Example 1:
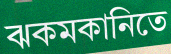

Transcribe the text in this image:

ঝকমকানিতে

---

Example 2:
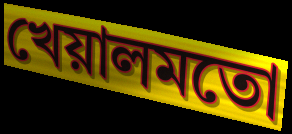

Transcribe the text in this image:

খেয়ালমতো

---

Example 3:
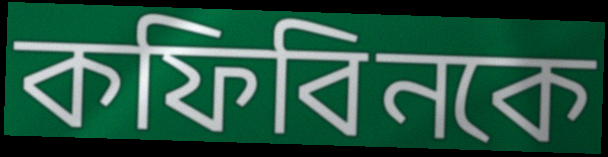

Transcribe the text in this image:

কফিবিনকে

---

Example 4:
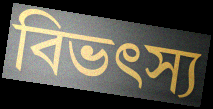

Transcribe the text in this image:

বিভৎস্য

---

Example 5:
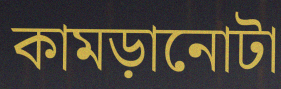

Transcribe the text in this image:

কামড়ানোটা